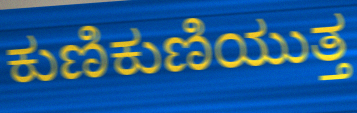
ಕುಣಿಕುಣಿಯುತ್ತ